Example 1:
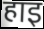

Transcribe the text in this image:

हाइ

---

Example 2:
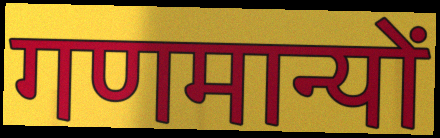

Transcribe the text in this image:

गणमान्यों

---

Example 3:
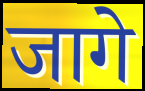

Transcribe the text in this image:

जागे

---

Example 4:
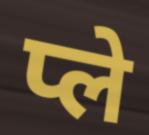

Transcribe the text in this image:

प्ले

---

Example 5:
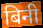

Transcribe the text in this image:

बिनी